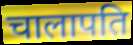
चालापति